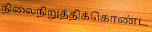
நிலைநிறுத்திக்கொண்ட